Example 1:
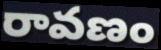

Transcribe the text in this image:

రావణం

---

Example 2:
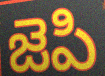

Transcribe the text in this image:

జెపి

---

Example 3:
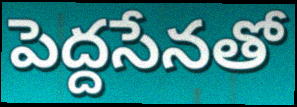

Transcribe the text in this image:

పెద్దసేనతో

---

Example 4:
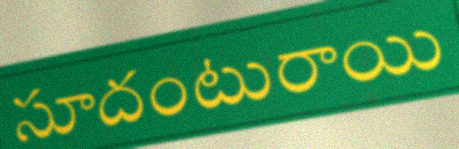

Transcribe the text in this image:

సూదంటురాయి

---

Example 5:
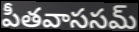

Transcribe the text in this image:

పీతవాససమ్